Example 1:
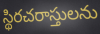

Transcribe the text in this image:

స్థిరచరాస్తులను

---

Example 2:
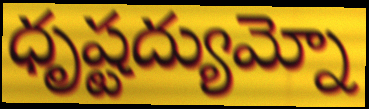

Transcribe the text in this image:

ధృష్టద్యుమ్నో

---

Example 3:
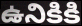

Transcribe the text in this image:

ఉనికికి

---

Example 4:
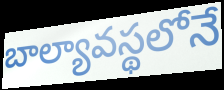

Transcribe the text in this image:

బాల్యావస్థలోనే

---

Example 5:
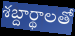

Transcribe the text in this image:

శబ్దార్థాలతో